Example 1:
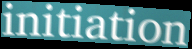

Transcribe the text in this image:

initiation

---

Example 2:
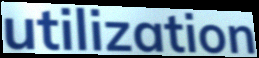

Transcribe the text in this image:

utilization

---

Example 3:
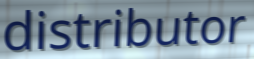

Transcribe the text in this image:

distributor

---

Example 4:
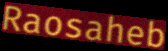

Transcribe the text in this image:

Raosaheb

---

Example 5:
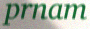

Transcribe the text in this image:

prnam